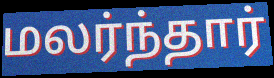
மலர்ந்தார்